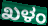
ಖಳಂ